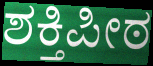
ಶಕ್ತಿಪೀಠ